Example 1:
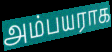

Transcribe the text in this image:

அம்பயராக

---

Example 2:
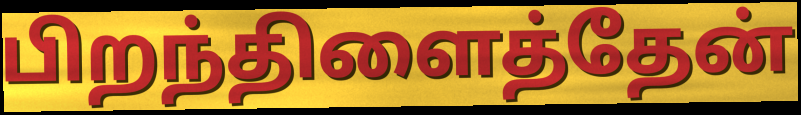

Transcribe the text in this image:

பிறந்திளைத்தேன்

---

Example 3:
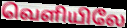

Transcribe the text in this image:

வெளியிலே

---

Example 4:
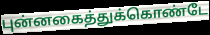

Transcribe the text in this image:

புன்னகைத்துக்கொண்டே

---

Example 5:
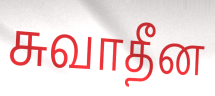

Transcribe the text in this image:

சுவாதீன